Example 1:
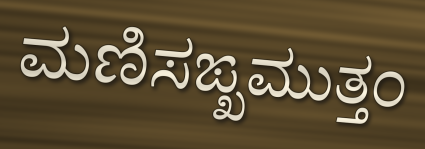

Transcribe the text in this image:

ಮಣಿಸಙ್ಖಮುತ್ತಂ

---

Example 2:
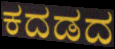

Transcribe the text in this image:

ಕದಡದ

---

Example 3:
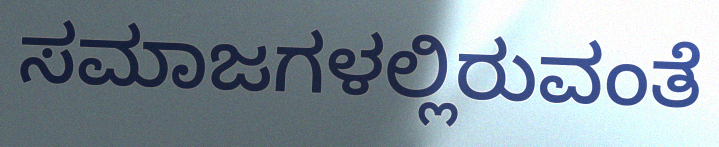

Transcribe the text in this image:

ಸಮಾಜಗಳಲ್ಲಿರುವಂತೆ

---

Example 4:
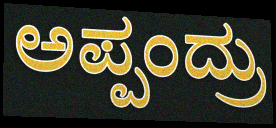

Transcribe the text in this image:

ಅಪ್ಪಂದ್ರು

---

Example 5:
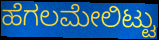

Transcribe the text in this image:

ಹೆಗಲಮೇಲಿಟ್ಟು